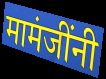
मामंजींनी